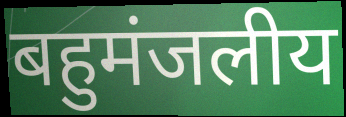
बहुमंजलीय